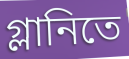
গ্লানিতে